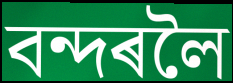
বন্দৰলৈ